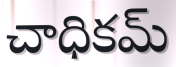
చాధికమ్